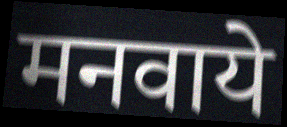
मनवाये